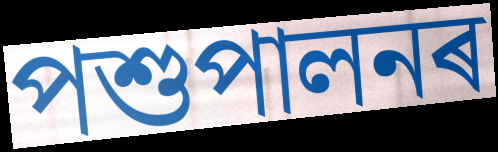
পশুপালনৰ